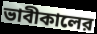
ভাবীকালের